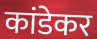
कांडेकर